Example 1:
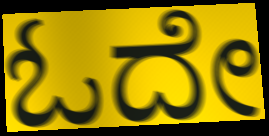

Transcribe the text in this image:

ಓದೇ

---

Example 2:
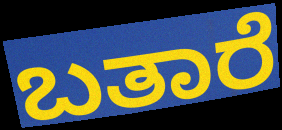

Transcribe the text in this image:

ಬತಾರೆ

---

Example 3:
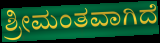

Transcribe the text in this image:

ಶ್ರೀಮಂತವಾಗಿದೆ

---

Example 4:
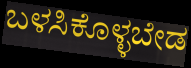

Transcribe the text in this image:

ಬಳಸಿಕೊಳ್ಳಬೇಡ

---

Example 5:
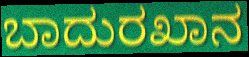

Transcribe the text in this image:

ಬಾದುರಖಾನ